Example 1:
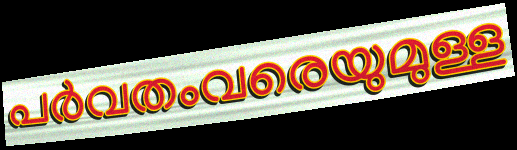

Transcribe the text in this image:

പർവതംവരെയുമുള്ള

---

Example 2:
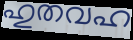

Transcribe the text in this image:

ഹുതവഹ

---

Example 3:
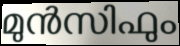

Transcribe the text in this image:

മുൻസിഫും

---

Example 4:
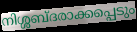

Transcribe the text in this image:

നിശ്ശബ്ദരാക്കപ്പെടും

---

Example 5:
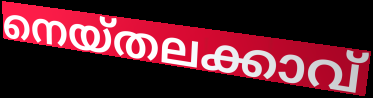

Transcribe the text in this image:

നെയ്തലക്കാവ്